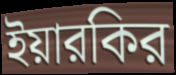
ইয়ারকির